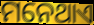
ମନେଥାଏ